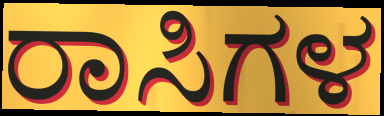
ರಾಸಿಗಳ